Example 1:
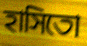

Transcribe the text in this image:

হাসিতো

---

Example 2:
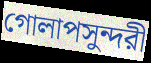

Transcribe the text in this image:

গোলাপসুন্দরী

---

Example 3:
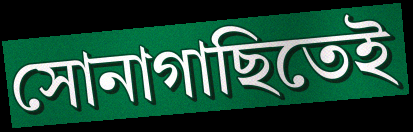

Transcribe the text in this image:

সোনাগাছিতেই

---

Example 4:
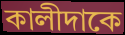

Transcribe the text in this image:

কালীদাকে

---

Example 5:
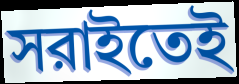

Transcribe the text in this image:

সরাইতেই